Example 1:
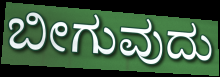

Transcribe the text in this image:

ಬೀಗುವುದು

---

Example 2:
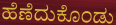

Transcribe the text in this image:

ಹೆಣೆದುಕೊಂಡು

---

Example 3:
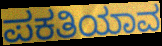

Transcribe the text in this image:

ಪಕತಿಯಾವ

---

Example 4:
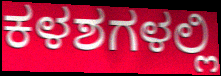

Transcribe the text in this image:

ಕಳಶಗಳಲ್ಲಿ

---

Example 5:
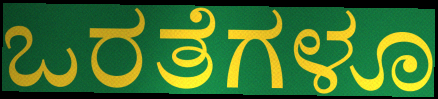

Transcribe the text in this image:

ಒರತೆಗಳೂ